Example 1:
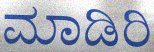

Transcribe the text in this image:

ಮಾಡಿರಿ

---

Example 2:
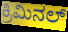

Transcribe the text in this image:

ಕ್ರಿಮಿನಲ್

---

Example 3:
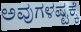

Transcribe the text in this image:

ಅವುಗಳಷ್ಟಕ್ಕೆ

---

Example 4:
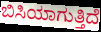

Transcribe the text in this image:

ಬಿಸಿಯಾಗುತ್ತಿದೆ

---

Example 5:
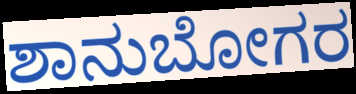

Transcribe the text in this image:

ಶಾನುಬೋಗರ